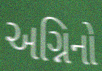
અગ્નિનો